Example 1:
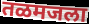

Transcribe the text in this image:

तळमजला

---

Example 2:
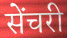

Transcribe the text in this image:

सेंचरी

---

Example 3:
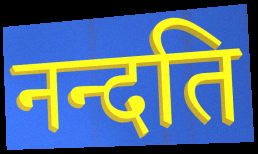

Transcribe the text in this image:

नन्दति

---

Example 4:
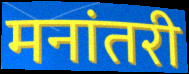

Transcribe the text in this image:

मनांतरी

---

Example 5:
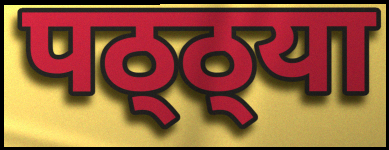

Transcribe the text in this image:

पठ्ठ्या